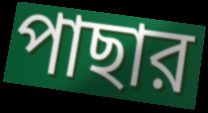
পাছার